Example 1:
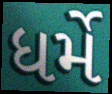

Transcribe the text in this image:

ધર્મે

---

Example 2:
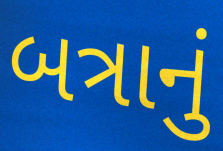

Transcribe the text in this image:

બત્રાનું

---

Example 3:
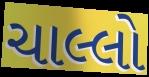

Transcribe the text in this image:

ચાલ્લો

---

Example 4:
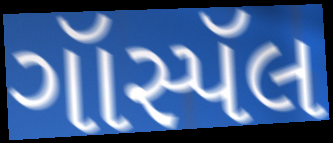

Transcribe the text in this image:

ગૉસ્પૅલ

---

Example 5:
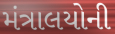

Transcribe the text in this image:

મંત્રાલયોની